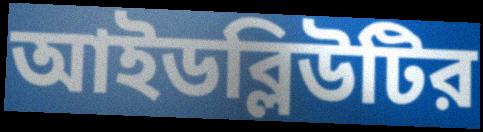
আইডব্লিউটির